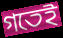
গতেই